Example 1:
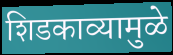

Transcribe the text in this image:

शिडकाव्यामुळे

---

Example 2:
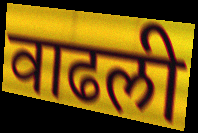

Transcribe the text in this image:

वाढली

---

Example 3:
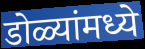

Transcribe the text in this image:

डोळ्यांमध्ये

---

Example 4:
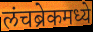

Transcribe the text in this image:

लंचब्रेकमध्ये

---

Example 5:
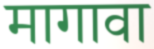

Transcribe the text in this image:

मागावा